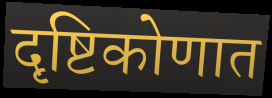
दृष्टिकोणात